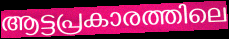
ആട്ടപ്രകാരത്തിലെ